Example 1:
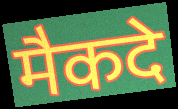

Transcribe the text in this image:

मैकदे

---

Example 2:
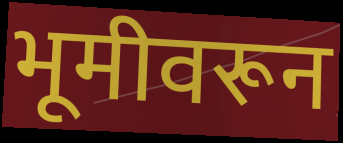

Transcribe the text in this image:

भूमीवरून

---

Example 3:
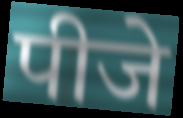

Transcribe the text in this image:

पीजे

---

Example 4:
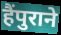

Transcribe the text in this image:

हैंपुराने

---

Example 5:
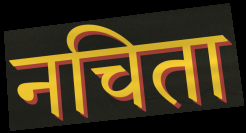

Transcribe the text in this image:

नचिता